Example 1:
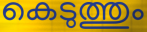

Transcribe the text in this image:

കെടുത്തും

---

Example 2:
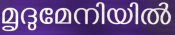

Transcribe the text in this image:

മൃദുമേനിയിൽ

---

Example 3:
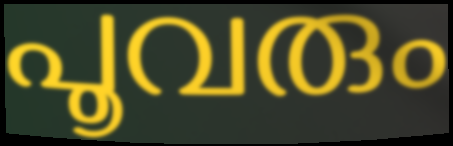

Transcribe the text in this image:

പൂവരും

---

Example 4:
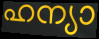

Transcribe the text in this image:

ഹന്യാ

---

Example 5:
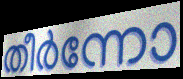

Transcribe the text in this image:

തീർന്നോ